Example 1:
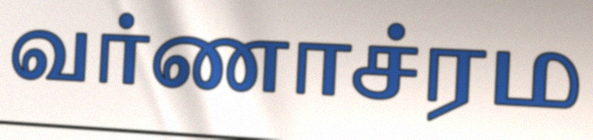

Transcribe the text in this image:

வர்ணாச்ரம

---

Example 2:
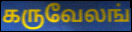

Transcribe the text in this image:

கருவேலங்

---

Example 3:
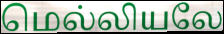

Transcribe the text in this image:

மெல்லியலே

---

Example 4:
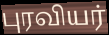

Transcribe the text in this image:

புரவியர்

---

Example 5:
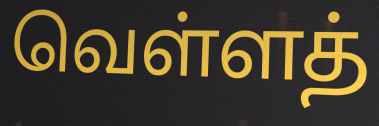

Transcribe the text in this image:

வெள்ளத்